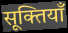
सूक्तियाँ